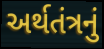
અર્થતંત્રનું